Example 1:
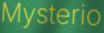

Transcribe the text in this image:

Mysterio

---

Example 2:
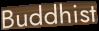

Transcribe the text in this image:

Buddhist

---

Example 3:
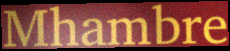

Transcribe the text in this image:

Mhambre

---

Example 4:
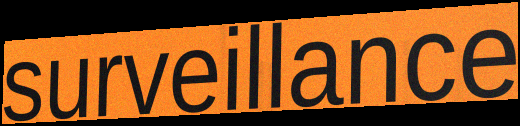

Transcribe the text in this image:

surveillance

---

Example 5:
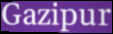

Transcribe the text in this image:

Gazipur